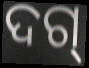
ଦଗ୍